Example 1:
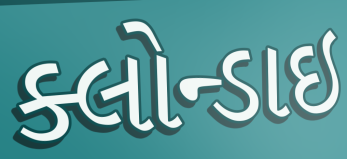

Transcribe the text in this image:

ક્લોન્ડાઇ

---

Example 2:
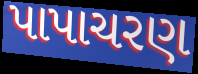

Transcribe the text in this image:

પાપાચરણ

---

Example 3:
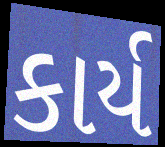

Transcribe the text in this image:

કાર્ય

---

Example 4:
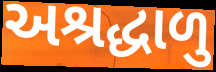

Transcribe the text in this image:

અશ્રદ્ધાળુ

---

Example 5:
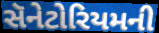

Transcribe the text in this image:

સૅનેટોરિયમની